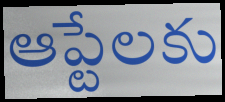
ఆప్టేలకు